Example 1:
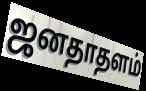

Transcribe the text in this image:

ஜனதாதளம்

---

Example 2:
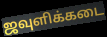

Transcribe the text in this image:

ஜவுளிக்கடை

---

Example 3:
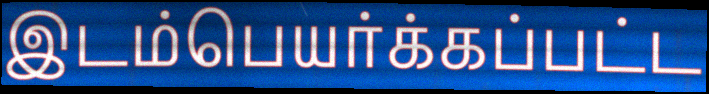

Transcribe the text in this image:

இடம்பெயர்க்கப்பட்ட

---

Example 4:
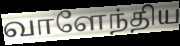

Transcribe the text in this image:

வாளேந்திய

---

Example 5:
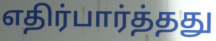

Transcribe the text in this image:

எதிர்பார்த்தது